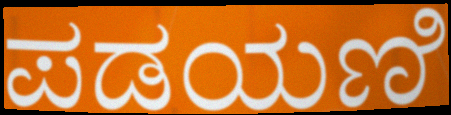
ಪಡಯಣಿ